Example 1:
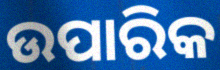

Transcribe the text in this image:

ଉପାରିକ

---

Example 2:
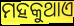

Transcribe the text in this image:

ମହକୁଥାଏ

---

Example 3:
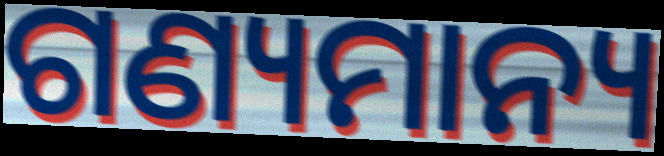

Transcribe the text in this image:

ଗଣ୍ୟମାନ୍ୟ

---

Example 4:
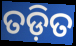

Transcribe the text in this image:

ତଡ଼ିତ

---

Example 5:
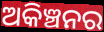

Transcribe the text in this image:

ଅକିଞ୍ଚନର